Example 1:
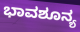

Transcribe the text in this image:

ಭಾವಶೂನ್ಯ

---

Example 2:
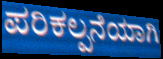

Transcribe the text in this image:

ಪರಿಕಲ್ಪನೆಯಾಗಿ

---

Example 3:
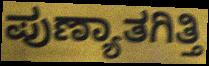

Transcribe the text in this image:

ಪುಣ್ಯಾತಗಿತ್ತಿ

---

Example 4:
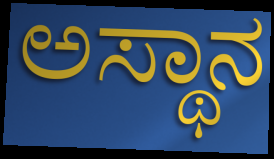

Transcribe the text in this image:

ಅಸ್ಥಾನ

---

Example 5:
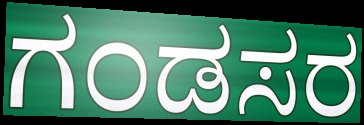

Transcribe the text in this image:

ಗಂಡಸರ